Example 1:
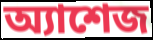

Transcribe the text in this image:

অ্যাশেজ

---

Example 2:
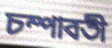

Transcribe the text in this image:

চম্পাবতী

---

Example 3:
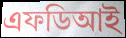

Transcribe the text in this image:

এফডিআই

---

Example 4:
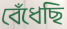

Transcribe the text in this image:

বেঁধেছি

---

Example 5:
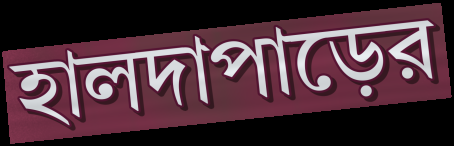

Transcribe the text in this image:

হালদাপাড়ের